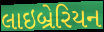
લાઇબ્રેરિયન